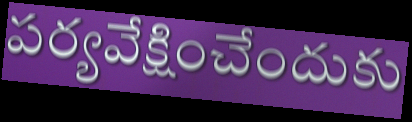
పర్యవేక్షించేందుకు